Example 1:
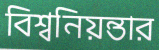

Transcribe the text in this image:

বিশ্বনিয়ন্তার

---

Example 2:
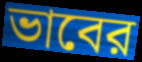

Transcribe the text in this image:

ভাবের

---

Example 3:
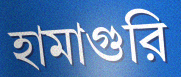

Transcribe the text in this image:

হামাগুরি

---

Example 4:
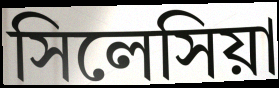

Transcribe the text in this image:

সিলেসিয়া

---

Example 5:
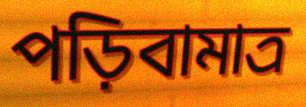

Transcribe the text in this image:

পড়িবামাত্র